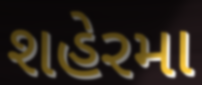
શહેરમા